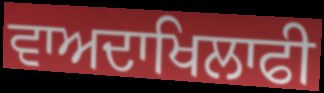
ਵਾਅਦਾਖਿਲਾਫੀ